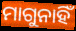
ମାଗୁନାହିଁ